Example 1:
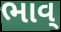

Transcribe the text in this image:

ભાવ્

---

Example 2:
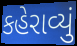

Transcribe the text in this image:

કહેરાવ્યું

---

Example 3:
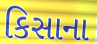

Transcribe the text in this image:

કિસાના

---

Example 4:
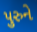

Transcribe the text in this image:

પુરુને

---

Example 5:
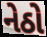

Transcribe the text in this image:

નેઠો